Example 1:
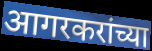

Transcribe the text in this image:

आगरकरांच्या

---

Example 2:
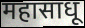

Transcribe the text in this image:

महासाधू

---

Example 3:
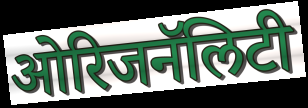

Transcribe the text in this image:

ओरिजनॅलिटी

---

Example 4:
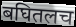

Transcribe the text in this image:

बघितलच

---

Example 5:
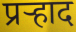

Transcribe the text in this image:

प्रर्‍हाद